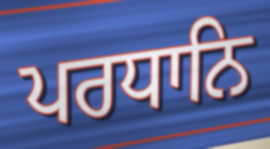
ਪਰਧਾਨਿ